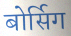
बोर्सिग